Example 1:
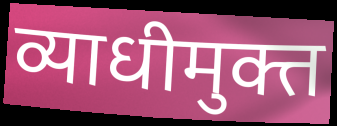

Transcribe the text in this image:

व्याधीमुक्त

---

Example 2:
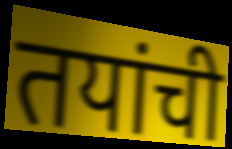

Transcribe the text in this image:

तयांची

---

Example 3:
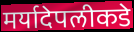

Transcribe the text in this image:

मर्यादेपलीकडे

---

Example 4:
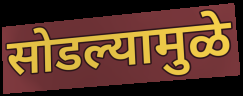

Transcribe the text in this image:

सोडल्यामुळे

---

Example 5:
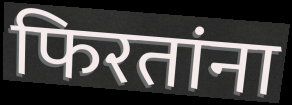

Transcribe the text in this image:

फिरतांना